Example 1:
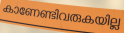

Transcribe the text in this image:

കാണേണ്ടിവരുകയില്ല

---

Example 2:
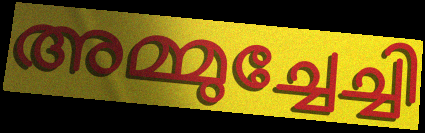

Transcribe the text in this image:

അമ്മുച്ചേച്ചി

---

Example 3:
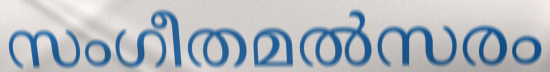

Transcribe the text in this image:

സംഗീതമൽസരം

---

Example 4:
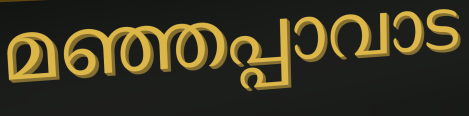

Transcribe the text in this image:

മഞ്ഞപ്പാവാട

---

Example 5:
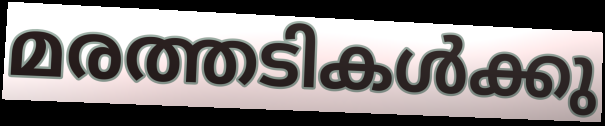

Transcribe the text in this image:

മരത്തടികൾക്കു